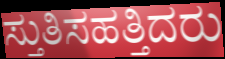
ಸ್ತುತಿಸಹತ್ತಿದರು